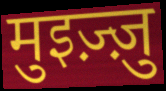
मुइज़्ज़ु